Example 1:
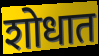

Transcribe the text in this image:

शोधात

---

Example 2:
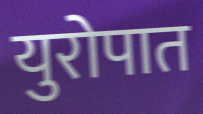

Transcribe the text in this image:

युरोपात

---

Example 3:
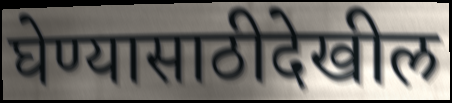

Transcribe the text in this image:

घेण्यासाठीदेखील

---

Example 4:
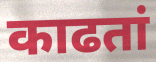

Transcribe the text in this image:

काढतां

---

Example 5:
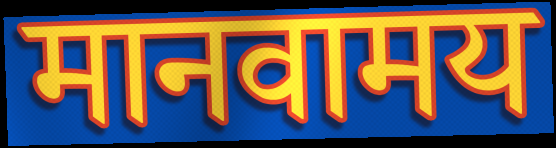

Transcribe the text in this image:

मानवामय